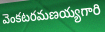
వెంకటరమణయ్యగారి